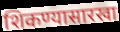
शिकण्यासारखा